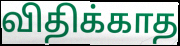
விதிக்காத